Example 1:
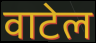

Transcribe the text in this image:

वाटेल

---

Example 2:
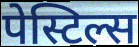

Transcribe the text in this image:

पेस्टिल्स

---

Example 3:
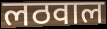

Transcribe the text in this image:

लठवाल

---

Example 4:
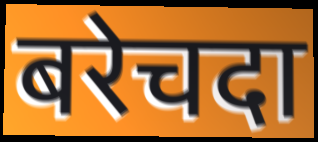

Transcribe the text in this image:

बरेचदा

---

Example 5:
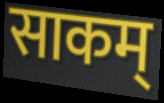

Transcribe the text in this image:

साकम्